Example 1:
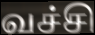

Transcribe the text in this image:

வச்சி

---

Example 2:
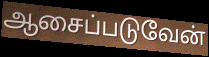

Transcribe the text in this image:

ஆசைப்படுவேன்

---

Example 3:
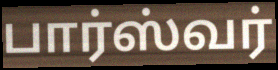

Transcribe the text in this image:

பார்ஸ்வர்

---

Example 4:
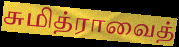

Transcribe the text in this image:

சுமித்ராவைத்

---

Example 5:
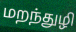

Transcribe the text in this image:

மறந்துழி